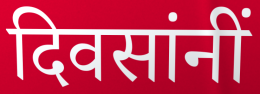
दिवसांनीं